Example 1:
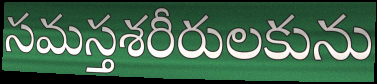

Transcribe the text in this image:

సమస్తశరీరులకును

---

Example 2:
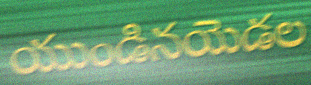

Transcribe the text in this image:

యుండినయెడల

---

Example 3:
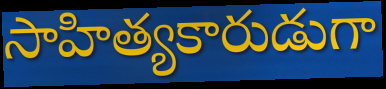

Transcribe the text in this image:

సాహిత్యకారుడుగా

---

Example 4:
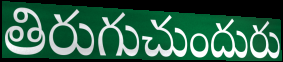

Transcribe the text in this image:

తిరుగుచుందురు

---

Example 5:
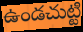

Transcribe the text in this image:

ఉండచుట్టి